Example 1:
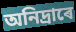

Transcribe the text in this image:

অনিদ্ৰাৰে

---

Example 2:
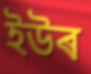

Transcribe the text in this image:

ইউৰ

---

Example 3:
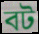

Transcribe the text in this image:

বট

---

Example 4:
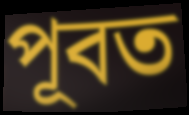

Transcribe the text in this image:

পূবত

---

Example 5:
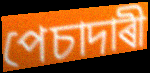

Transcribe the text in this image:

পেচাদাৰী